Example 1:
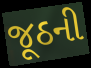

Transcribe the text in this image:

જૂઠની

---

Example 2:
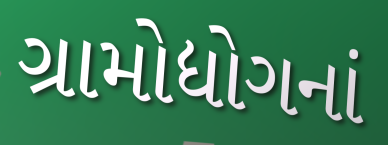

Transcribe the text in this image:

ગ્રામોદ્યોગનાં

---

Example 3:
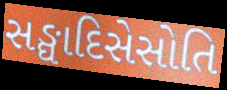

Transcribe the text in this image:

સઙ્ઘાદિસેસોતિ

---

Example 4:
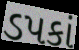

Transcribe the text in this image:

ડપકાં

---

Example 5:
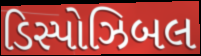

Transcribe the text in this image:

ડિસ્પોઝિબલ